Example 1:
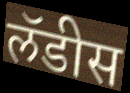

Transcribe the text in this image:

लॅडीस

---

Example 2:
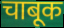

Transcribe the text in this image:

चाबूक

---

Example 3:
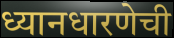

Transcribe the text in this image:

ध्यानधारणेची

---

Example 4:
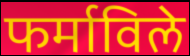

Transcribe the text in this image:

फर्माविले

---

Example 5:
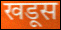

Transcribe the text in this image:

खडूस